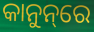
କାନୁନ୍‌ରେ